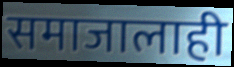
समाजालाही